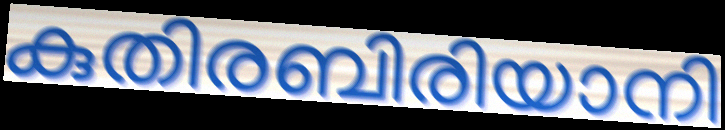
കുതിരബിരിയാനി